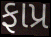
ફાપ્ર